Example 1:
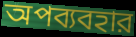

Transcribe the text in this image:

অপব্যবহার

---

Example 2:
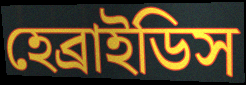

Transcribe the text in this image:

হেব্রাইডিস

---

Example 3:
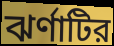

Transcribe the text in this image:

ঝর্ণাটির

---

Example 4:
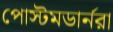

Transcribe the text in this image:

পোস্টমডার্নরা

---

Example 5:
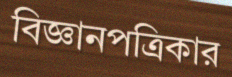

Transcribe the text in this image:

বিজ্ঞানপত্রিকার